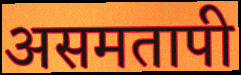
असमतापी